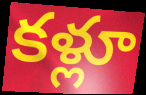
కళ్లూ